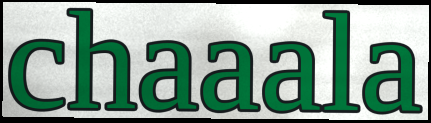
chaaala